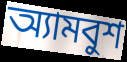
অ্যামবুশ